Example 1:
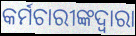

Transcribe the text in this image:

କର୍ମଚାରୀଙ୍କଦ୍ୱାରା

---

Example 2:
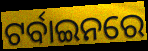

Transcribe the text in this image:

ଟର୍ବାଇନରେ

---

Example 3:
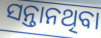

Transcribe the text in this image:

ସନ୍ତାନଥିବା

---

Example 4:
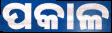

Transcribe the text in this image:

ପକାଳ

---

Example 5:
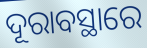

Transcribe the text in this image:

ଦୂରାବସ୍ଥାରେ